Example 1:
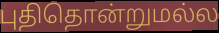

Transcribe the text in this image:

புதிதொன்றுமல்ல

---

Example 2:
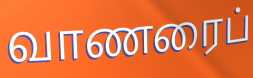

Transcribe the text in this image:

வாணரைப்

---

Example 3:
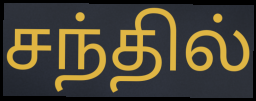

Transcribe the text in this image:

சந்தில்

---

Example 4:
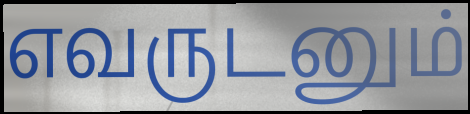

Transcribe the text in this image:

எவருடனும்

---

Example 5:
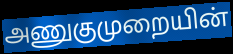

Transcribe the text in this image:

அணுகுமுறையின்